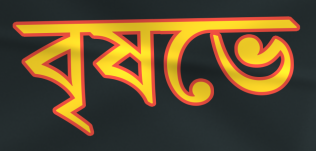
বৃষভে